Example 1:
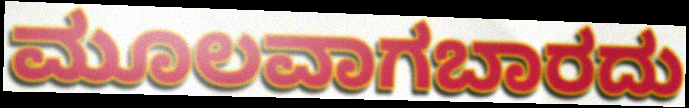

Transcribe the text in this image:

ಮೂಲವಾಗಬಾರದು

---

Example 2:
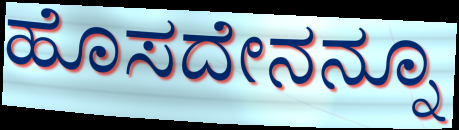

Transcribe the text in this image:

ಹೊಸದೇನನ್ನೂ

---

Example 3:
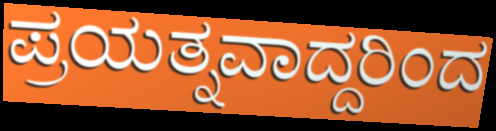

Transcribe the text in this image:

ಪ್ರಯತ್ನವಾದ್ದರಿಂದ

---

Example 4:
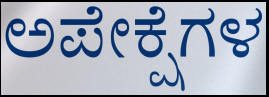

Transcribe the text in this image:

ಅಪೇಕ್ಷೆಗಳ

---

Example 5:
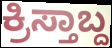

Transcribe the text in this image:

ಕ್ರಿಸ್ತಾಬ್ದ